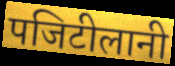
पजिटीलानी